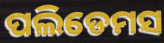
ପଲିଡେମସ